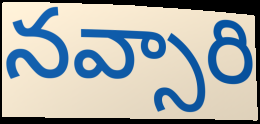
నవ్సారి